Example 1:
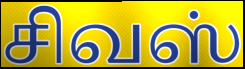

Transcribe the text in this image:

சிவஸ்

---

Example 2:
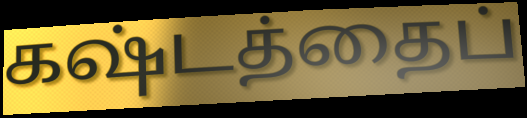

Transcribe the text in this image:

கஷ்டத்தைப்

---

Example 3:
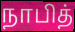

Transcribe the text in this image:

நாபித்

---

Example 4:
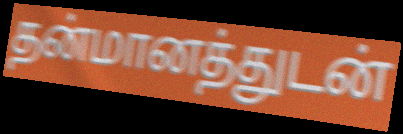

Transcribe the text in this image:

தன்மானத்துடன்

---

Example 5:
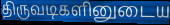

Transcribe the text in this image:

திருவடிகளினுடைய